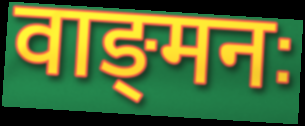
वाङ्मनः